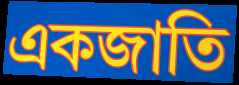
একজাতি